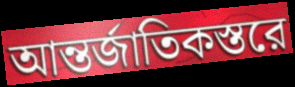
আন্তর্জাতিকস্তরে